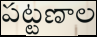
పట్టణాల